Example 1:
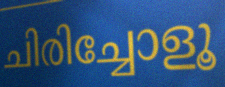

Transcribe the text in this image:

ചിരിച്ചോളൂ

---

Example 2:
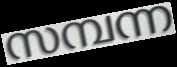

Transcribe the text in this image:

സമ്പന്ന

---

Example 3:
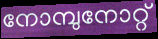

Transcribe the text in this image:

നോമ്പുനോറ്റ്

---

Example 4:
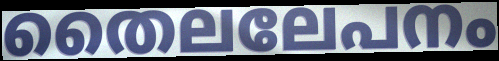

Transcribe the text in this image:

തൈലലേപനം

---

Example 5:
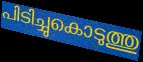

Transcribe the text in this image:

പിടിച്ചുകൊടുത്തു